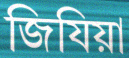
জিযিয়া